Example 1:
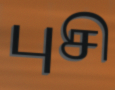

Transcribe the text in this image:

புசி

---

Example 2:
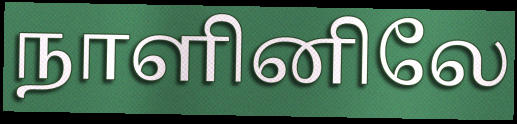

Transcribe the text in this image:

நாளினிலே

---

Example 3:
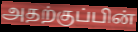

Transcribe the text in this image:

அதற்குப்பின்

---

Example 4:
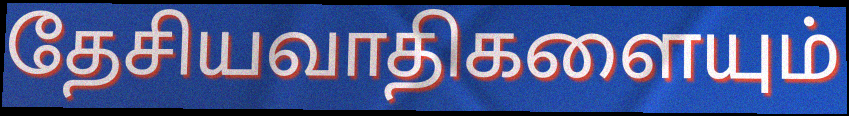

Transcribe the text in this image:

தேசியவாதிகளையும்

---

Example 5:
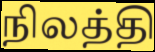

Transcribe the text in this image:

நிலத்தி